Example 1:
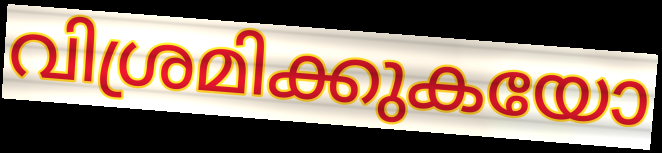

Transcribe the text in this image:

വിശ്രമിക്കുകയോ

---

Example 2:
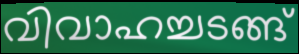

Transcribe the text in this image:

വിവാഹച്ചടങ്ങ്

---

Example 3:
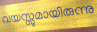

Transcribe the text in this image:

വയസ്സുമായിരുന്നു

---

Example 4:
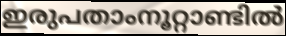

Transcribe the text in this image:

ഇരുപതാംനൂറ്റാണ്ടിൽ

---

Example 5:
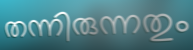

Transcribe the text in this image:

തന്നിരുന്നതും